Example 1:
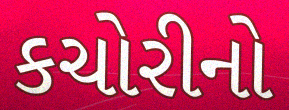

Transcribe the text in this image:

કચોરીનો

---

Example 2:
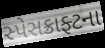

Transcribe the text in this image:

સ્પેસક્રાફ્ટના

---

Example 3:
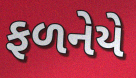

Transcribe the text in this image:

ફળનેયે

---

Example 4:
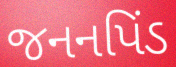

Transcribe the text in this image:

જનનપિંડ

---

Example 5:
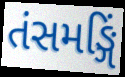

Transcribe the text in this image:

તંસમઙ્ગિં